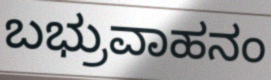
ಬಭ್ರುವಾಹನಂ